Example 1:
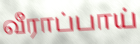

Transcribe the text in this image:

வீராப்பாய்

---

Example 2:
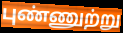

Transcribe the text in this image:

புண்ணுற்று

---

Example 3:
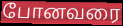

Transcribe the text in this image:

போனவரை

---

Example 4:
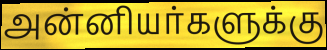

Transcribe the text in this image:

அன்னியர்களுக்கு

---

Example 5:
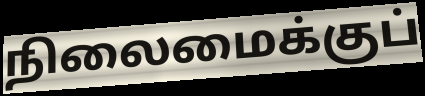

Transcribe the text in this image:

நிலைமைக்குப்